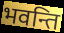
भवन्ति